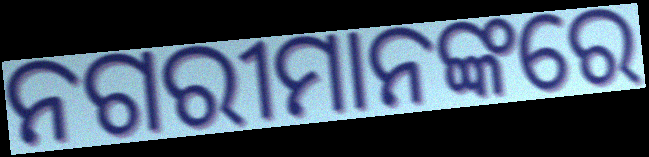
ନଗରୀମାନଙ୍କରେ